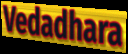
Vedadhara